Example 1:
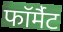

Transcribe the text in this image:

फॉर्मैट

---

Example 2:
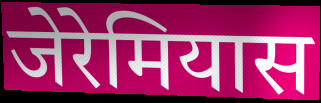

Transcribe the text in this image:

जेरेमियास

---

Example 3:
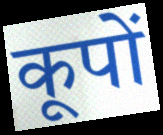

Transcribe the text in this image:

कूपों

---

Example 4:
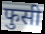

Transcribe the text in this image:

फुसी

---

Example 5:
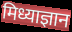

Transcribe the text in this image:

मिध्याज्ञान